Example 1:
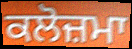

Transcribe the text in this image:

ਕਲੋਜ਼ਮਾ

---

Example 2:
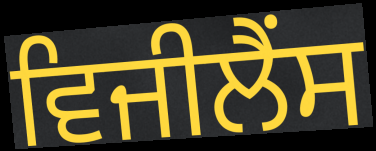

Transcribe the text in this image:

ਵਿਜੀਲੈਂਸ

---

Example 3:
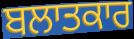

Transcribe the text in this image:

ਬਲਾਤਕਾਰ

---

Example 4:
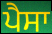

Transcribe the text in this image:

ਪੈਸਾ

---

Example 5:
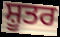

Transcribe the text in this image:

ਸ਼ੂਤਰ